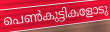
പെൺകുട്ടികളോടു